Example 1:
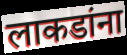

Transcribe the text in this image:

लाकडांना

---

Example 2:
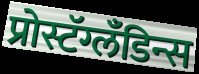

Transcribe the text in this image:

प्रोस्टॅग्लॅंडिन्स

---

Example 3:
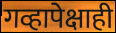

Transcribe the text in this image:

गव्हापेक्षाही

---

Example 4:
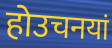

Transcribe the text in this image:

होउचनयां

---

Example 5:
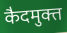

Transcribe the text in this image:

कैदमुक्त